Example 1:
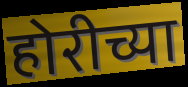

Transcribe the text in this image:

होरीच्या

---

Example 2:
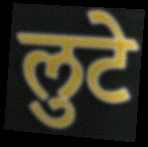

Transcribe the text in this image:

लुटे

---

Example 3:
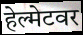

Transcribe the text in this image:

हेल्मेटवर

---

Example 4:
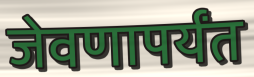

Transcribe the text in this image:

जेवणापर्यंत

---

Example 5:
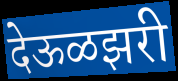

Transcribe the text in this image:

देऊळझरी